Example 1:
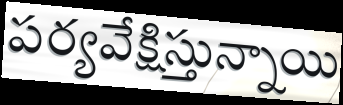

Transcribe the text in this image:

పర్యవేక్షిస్తున్నాయి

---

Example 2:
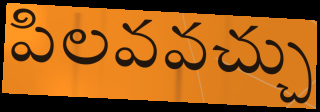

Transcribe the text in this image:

పిలవవచ్చు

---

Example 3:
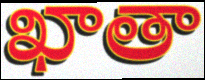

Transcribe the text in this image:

ఖాతా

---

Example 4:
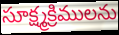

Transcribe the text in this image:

సూక్ష్మక్రిములను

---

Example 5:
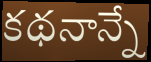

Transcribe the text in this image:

కథనాన్నే